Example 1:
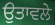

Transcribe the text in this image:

ਉਤਾਵਲੇ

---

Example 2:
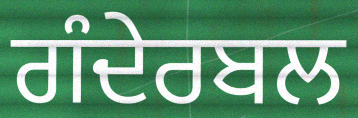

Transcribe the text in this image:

ਗੰਦੇਰਬਲ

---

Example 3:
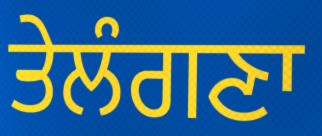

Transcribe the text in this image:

ਤੇਲੰਗਣਾ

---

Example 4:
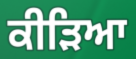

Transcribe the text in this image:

ਕੀੜਿਆ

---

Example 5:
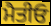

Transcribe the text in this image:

ਮੈਤੀਓ